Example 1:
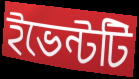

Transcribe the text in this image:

ইভেন্টটি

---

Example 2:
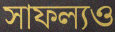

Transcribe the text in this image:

সাফল্যও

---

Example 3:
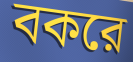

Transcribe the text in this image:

বকরে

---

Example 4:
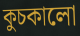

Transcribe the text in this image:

কুচকালো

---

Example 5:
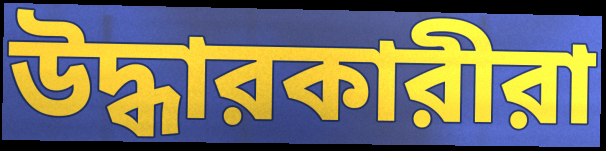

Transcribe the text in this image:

উদ্ধারকারীরা